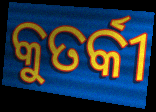
କୁତର୍କୀ